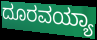
ದೂರವಯ್ಯಾ